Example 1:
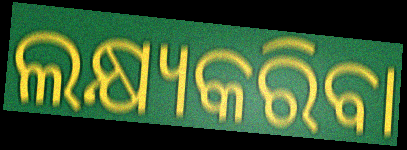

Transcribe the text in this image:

ଲକ୍ଷ୍ୟକରିବା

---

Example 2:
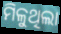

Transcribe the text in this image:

ମିଳୁଥିଲା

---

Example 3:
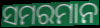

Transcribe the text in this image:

ସମରମାନ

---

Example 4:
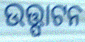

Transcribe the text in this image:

ଉତ୍ତ୍ପାଟନ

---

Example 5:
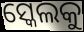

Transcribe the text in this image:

ସ୍କେଲକୁ